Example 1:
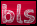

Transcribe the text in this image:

bls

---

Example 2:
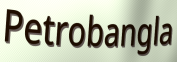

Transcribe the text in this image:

Petrobangla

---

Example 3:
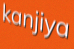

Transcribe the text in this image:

kanjiya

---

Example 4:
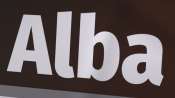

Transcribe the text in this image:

Alba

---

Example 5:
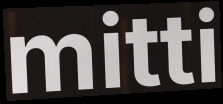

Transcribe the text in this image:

mitti